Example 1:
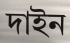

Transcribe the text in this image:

দাইন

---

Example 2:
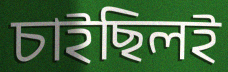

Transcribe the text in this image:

চাইছিলই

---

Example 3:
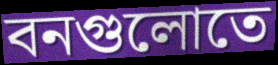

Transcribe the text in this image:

বনগুলোতে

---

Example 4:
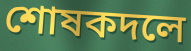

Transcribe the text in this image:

শোষকদলে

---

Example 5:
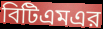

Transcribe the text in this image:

বিটিএমএর